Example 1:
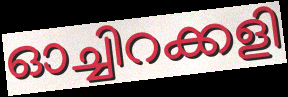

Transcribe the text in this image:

ഓച്ചിറക്കളി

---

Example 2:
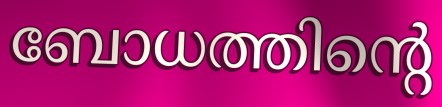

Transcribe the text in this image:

ബോധത്തിന്റെ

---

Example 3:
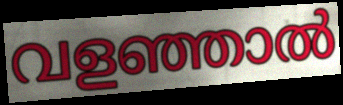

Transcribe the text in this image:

വളഞ്ഞാൽ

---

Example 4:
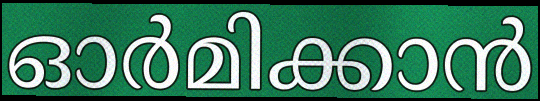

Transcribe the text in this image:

ഓർമിക്കാൻ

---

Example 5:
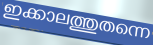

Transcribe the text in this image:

ഇക്കാലത്തുതന്നെ